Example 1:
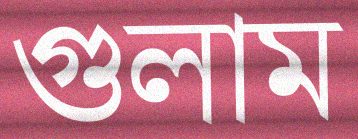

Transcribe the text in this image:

গুলাম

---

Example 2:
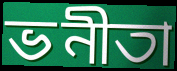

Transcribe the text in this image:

ভনীতা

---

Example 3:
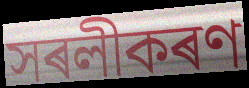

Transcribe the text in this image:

সৰলীকৰণ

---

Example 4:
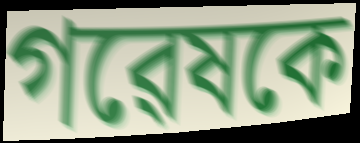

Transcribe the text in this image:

গৱেষকে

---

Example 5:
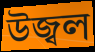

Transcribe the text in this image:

উজ্বল